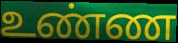
உண்ண